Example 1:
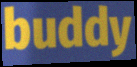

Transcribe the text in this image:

buddy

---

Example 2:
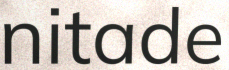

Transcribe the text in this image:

nitade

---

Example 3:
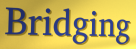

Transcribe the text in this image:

Bridging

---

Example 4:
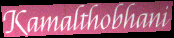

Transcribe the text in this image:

Kamalthobhani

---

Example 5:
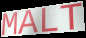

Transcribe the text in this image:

MALT